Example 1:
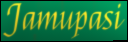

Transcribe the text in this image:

Jamupasi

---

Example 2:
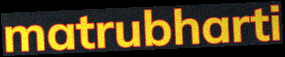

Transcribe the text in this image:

matrubharti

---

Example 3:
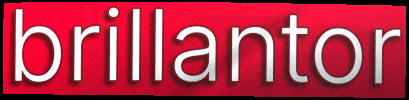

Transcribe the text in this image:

brillantor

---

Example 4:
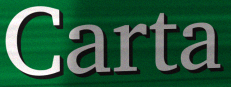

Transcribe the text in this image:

Carta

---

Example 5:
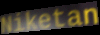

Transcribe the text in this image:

Niketan